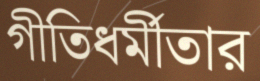
গীতিধর্মীতার